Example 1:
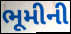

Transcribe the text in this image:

ભૂમીની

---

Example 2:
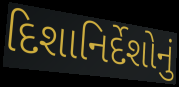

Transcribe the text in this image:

દિશાનિર્દેશોનું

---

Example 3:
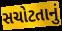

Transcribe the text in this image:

સચોટતાનું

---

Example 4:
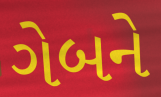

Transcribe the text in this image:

ગેબને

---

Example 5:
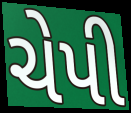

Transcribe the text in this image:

ચેપી